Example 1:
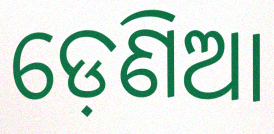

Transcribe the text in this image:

ଡ଼େଣିଆ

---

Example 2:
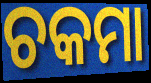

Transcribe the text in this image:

ଚକମା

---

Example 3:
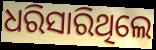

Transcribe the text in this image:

ଧରିସାରିଥିଲେ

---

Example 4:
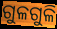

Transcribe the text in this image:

ଗୁଳଗୁଳି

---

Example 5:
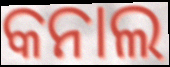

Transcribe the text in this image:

କନାଲ